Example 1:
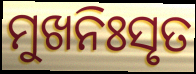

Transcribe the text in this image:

ମୁଖନିଃସୃତ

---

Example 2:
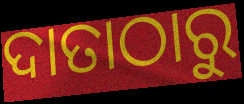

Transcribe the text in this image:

ଦାତାଠାରୁ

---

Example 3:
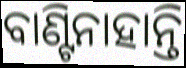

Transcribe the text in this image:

ବାଣ୍ଟିନାହାନ୍ତି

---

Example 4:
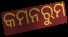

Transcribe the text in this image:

କମନରୁମ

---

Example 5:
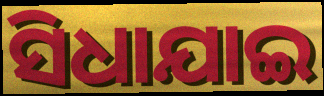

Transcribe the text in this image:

ସିଧାଯାଇ